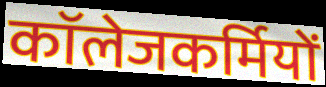
कॉलेजकर्मियों